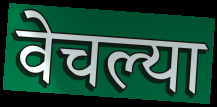
वेचल्या